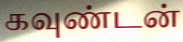
கவுண்டன்